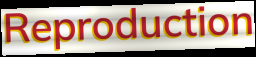
Reproduction